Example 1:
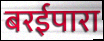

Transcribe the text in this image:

बरईपारा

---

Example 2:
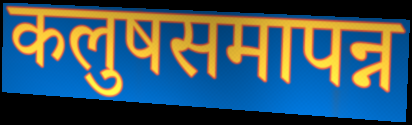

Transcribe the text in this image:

कलुषसमापन्न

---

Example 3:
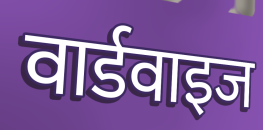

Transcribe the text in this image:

वार्डवाइज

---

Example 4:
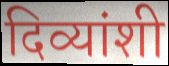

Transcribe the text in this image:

दिव्यांशी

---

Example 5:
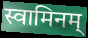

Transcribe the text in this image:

स्वामिनम्